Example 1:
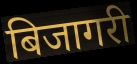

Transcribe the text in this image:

बिजागरी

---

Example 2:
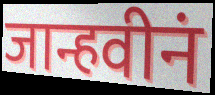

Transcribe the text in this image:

जान्हवीनं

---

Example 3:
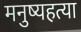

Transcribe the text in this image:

मनुष्यहत्या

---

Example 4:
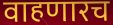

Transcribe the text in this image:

वाहणारच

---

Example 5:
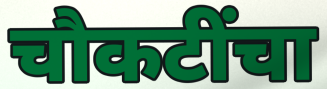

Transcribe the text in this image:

चौकटींचा